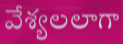
వేశ్యలలాగా